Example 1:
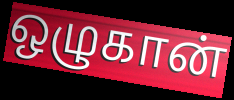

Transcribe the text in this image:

ஒழுகான்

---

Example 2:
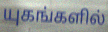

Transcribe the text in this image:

யுகங்களில்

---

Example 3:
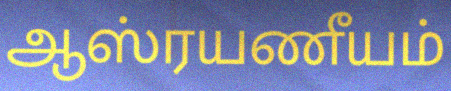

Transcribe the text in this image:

ஆஸ்ரயணீயம்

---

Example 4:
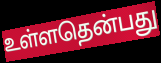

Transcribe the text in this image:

உள்ளதென்பது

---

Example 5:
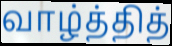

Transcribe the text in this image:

வாழ்த்தித்